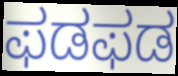
ಫಡಫಡ